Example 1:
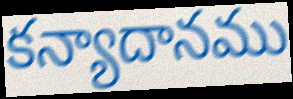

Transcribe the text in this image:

కన్యాదానము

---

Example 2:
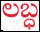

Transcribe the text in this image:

లబ్ధ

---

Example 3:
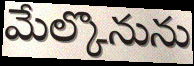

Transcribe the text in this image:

మేల్కొనును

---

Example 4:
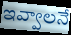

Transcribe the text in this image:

ఇవ్వాలనే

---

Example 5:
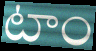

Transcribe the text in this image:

టాం